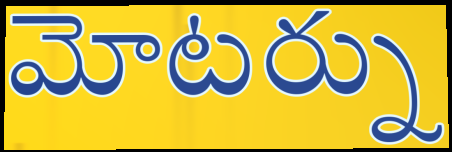
మోటర్ను